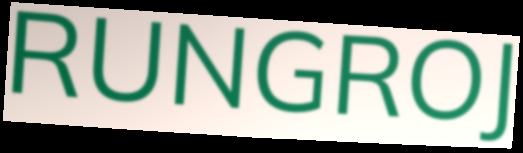
RUNGROJ